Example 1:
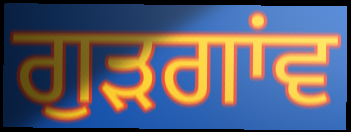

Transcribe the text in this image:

ਗੁਡ਼ਗਾਂਵ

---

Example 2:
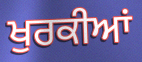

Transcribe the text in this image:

ਖੁਰਕੀਆਂ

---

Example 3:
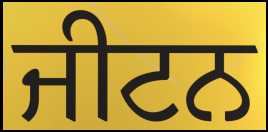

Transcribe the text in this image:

ਜੀਟਨ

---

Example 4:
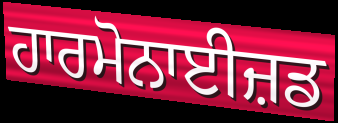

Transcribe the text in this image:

ਹਾਰਮੋਨਾਈਜ਼ਡ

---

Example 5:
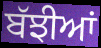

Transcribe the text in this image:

ਬੱਝੀਆਂ